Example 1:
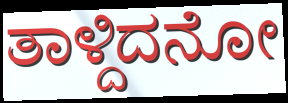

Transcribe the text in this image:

ತಾಳ್ದಿದನೋ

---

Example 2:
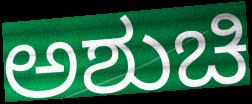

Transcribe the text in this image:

ಅಶುಚಿ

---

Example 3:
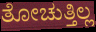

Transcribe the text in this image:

ತೋಚುತ್ತಿಲ್ಲ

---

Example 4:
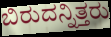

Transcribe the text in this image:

ಬಿರುದನ್ನಿತ್ತರು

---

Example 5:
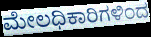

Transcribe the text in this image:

ಮೇಲಧಿಕಾರಿಗಳಿಂದ